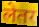
लेतर